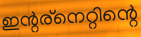
ഇന്റര്നെറ്റിന്റെ